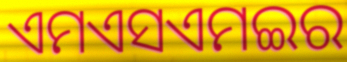
ଏମଏସଏମଇର